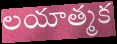
లయాత్మక